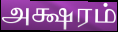
அக்ஷரம்